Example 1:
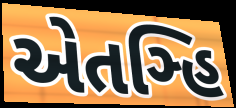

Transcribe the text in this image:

એતઞ્હિ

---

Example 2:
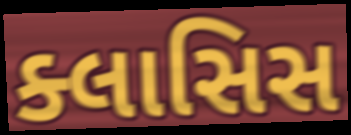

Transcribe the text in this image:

ક્લાસિસ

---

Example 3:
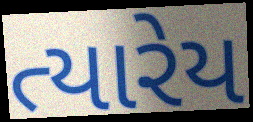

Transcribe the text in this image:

ત્યારેય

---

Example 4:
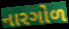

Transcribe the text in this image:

નારગોળ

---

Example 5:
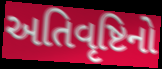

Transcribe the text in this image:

અતિવૃષ્ટિનો